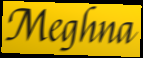
Meghna